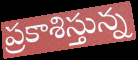
ప్రకాశిస్తున్న